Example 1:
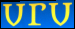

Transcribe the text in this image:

uru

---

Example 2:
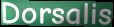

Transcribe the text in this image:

Dorsalis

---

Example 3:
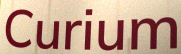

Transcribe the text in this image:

Curium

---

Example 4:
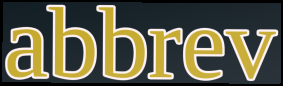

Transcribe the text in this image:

abbrev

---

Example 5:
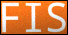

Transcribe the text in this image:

FIS